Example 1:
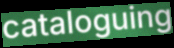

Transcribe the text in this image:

cataloguing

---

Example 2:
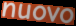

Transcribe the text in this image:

nuovo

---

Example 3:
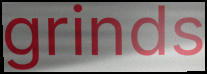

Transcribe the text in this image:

grinds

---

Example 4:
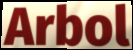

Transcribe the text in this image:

Arbol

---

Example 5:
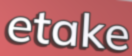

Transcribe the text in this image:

etake